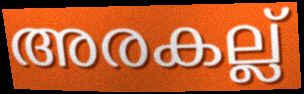
അരകല്ല്